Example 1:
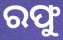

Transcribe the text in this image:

ରଫୁ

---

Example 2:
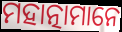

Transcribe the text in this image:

ମହାତ୍ନାମାନେ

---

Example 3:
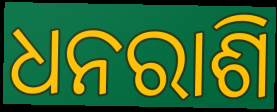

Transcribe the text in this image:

ଧନରାଶି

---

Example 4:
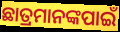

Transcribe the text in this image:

ଛାତ୍ରମାନଙ୍କପାଇଁ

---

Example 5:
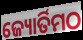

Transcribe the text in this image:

ଜ୍ୟୋର୍ତିମଠ